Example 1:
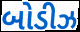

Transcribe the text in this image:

બોડીઝ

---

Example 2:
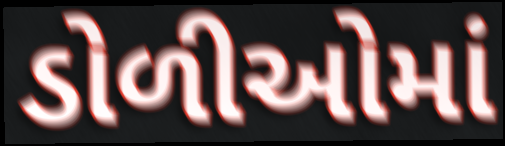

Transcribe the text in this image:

ડોળીઓમાં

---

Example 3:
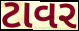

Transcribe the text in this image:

ટાવર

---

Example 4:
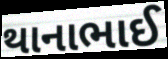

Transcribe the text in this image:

થાનાભાઈ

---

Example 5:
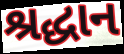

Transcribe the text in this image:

શ્રદ્ધાન